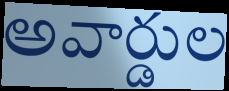
అవార్డుల